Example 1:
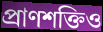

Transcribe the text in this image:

প্রাণশক্তিও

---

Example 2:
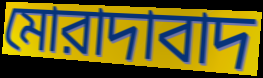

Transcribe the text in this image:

মোরাদাবাদ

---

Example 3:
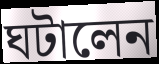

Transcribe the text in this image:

ঘটালেন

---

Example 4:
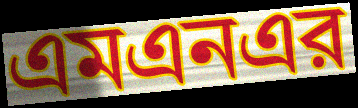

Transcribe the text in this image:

এমএনএর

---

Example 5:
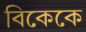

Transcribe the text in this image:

বিকেকে